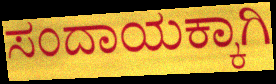
ಸಂದಾಯಕ್ಕಾಗಿ